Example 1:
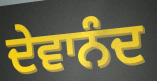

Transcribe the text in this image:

ਦੇਵਾਨੰਦ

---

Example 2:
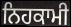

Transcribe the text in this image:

ਨਿਹਕਾਮੀ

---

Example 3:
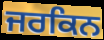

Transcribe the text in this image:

ਜਰਕਿਨ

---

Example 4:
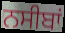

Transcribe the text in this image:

ਨਸੀਬਾਂ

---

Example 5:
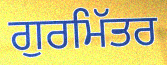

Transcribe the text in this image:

ਗੁਰਮਿੱਤਰ